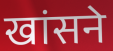
खांसने